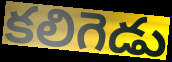
కలిగెడు